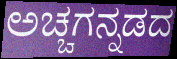
ಅಚ್ಚಗನ್ನಡದ